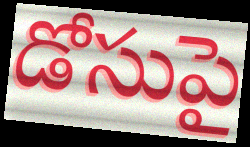
డోసుపై